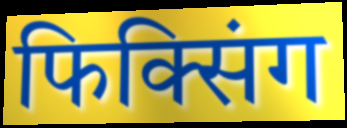
फिक्‍सिंग